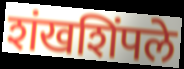
शंखशिंपले